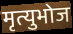
मृत्युभोज